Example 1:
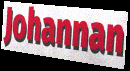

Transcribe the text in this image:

Johannan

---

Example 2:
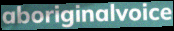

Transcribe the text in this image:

aboriginalvoice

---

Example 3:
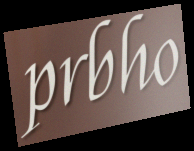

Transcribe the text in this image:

prbho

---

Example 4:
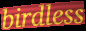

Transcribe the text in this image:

birdless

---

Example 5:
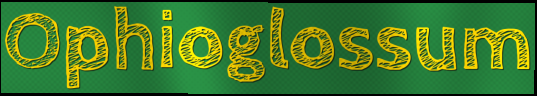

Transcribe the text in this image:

Ophioglossum